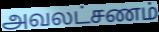
அவலட்சணம்